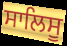
ਸਾਲਿਸੂ